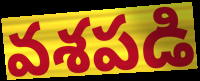
వశపడి